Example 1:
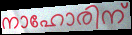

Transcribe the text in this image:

നാഹോരിന്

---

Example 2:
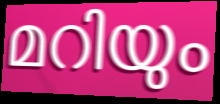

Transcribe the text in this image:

മറിയും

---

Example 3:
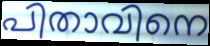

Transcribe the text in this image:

പിതാവിനെ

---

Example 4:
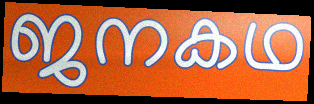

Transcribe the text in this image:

ജനകഥ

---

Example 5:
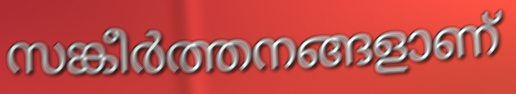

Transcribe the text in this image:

സങ്കീർത്തനങ്ങളാണ്